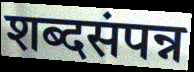
शब्दसंपन्न